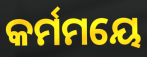
କର୍ମମୟେ